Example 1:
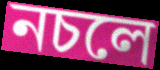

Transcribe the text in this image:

নচলে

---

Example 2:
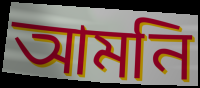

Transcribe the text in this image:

আমনি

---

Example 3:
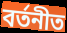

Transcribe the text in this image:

বৰ্তনীত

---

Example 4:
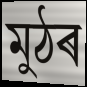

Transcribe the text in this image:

মুঠৰ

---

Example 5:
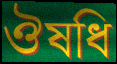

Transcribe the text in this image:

ঔষধি